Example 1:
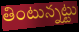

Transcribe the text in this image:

తింటున్నట్టు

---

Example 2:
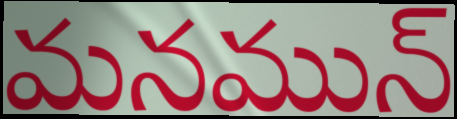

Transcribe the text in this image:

మనమున్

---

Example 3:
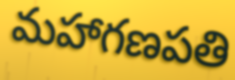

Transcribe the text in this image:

మహాగణపతి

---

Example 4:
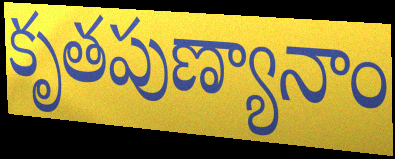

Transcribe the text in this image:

కృతపుణ్యానాం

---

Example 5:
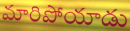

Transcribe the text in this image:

మారిపోయాడు